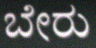
ಬೇರು